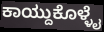
ಕಾಯ್ದುಕೊಳ್ಳೈ